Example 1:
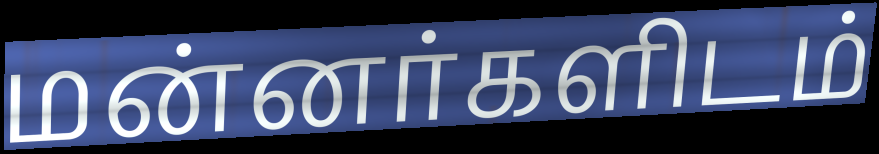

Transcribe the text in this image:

மன்னர்களிடம்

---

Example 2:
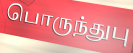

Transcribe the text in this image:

பொருந்துபு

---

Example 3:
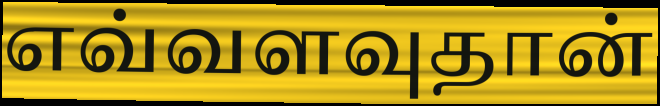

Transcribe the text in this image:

எவ்வளவுதான்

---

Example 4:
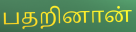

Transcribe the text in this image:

பதறினான்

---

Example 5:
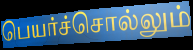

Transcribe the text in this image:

பெயர்ச்சொல்லும்